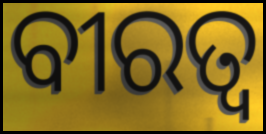
ବୀରତ୍ୱ